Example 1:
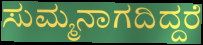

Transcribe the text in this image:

ಸುಮ್ಮನಾಗದಿದ್ದರೆ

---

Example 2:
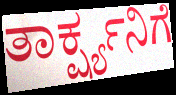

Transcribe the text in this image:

ತಾರ್ಕ್ಷ್ಯನಿಗೆ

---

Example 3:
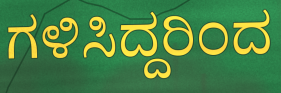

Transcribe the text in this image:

ಗಳಿಸಿದ್ದರಿಂದ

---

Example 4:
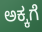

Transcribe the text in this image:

ಅಕ್ಕಗೆ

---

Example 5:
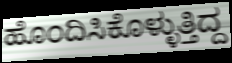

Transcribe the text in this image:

ಹೊಂದಿಸಿಕೊಳ್ಳುತ್ತಿದ್ದ